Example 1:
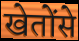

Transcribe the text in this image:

खेतोंसे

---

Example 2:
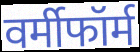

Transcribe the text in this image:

वर्मीफॉर्म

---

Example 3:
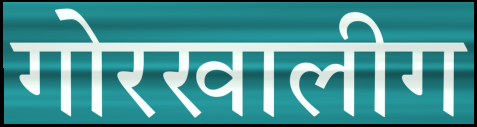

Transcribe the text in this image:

गोरखालीग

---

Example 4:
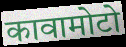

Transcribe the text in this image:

कावामोटो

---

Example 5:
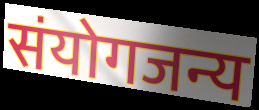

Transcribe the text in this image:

संयोगजन्य